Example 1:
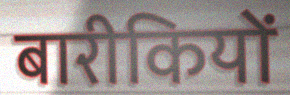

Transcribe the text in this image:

बारीकियों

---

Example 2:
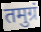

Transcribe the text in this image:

तमुग्रं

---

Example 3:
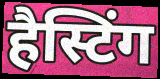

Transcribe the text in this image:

हैस्टिंग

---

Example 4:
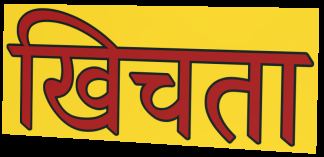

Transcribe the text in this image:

खिचता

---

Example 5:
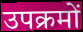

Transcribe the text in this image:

उपक्रमों